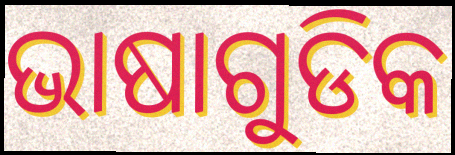
ଭାଷାଗୁଡିକ